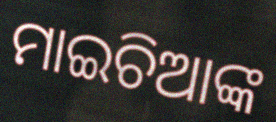
ମାଇଚିଆଙ୍କ